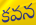
కవన